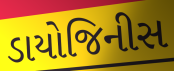
ડાયોજિનીસ